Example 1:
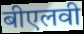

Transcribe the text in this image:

बीएलवी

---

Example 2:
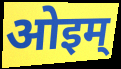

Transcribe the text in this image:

ओइम्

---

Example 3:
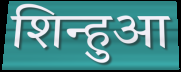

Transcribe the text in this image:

शिन्‍हुआ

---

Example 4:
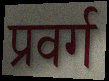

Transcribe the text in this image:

प्रवर्ग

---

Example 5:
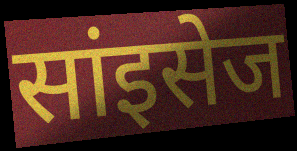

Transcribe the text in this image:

सांइसेज